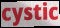
cystic